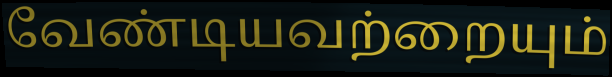
வேண்டியவற்றையும்